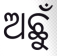
ଅଛୁଁ